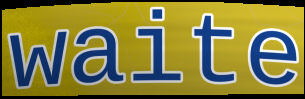
waite